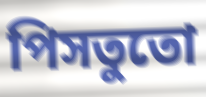
পিসতুতো